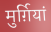
मुर्ग़ियां